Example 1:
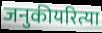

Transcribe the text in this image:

जनुकीयरित्या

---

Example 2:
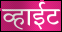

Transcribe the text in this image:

व्हाईट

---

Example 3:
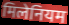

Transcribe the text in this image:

मिलेनियम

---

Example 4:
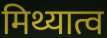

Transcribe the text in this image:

मिथ्यात्व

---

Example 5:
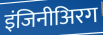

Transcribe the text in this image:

इंजिनीअिरग